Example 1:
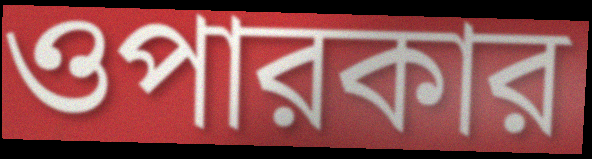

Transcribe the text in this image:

ওপারকার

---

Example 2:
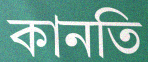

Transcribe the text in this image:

কানতি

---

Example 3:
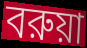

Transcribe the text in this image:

বরুয়া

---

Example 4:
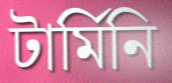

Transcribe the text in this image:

টার্মিনি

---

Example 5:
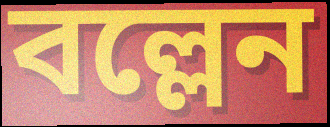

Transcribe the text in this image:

বল্লেন